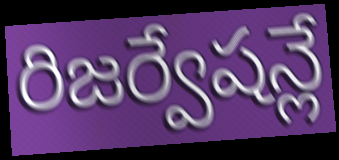
రిజర్వేషన్లే